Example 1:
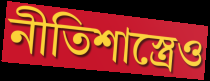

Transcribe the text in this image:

নীতিশাস্ত্রেও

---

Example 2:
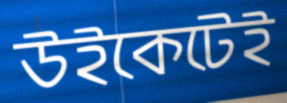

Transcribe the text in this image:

উইকেটেই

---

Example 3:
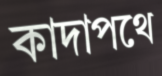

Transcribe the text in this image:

কাদাপথে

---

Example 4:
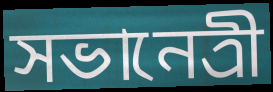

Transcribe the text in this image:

সভানেত্রী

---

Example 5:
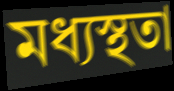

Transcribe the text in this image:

মধ্যস্থতা